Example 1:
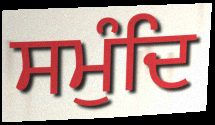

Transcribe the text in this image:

ਸਮੁੰਦਿ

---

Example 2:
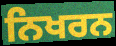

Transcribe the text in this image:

ਨਿਖਰਨ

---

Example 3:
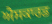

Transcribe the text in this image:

ਐਸਕਾਰਡ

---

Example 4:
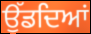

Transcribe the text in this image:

ਉੱਡਦਿਆਂ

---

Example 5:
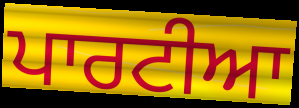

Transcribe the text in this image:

ਪਾਰਟੀਆ